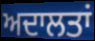
ਅਦਾਲਤਾਂ